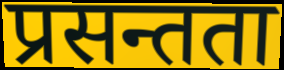
प्रसन्तता